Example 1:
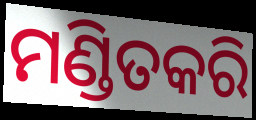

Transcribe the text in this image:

ମଣ୍ଡିତକରି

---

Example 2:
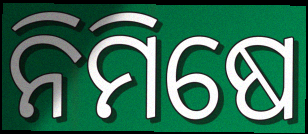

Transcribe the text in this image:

ନିମିଷେ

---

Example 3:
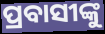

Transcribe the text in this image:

ପ୍ରବାସୀଙ୍କୁ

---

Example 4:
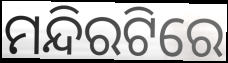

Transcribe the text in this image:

ମନ୍ଦିରଟିରେ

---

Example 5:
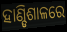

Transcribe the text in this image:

ହାଣ୍ଡିଶାଳରେ